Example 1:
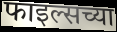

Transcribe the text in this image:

फाइल्सच्या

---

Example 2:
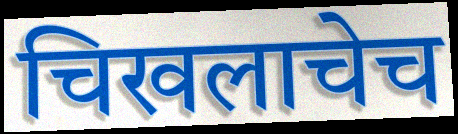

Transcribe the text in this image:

चिखलाचेच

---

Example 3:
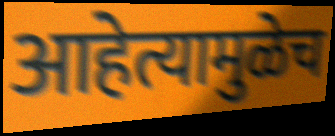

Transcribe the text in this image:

आहेत्यामुळेच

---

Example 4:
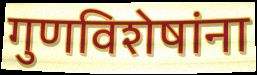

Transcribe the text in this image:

गुणविशेषांना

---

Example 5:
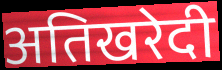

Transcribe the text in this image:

अतिखरेदी